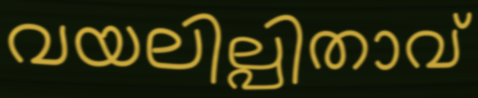
വയലില്പിതാവ്